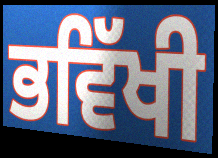
ਭਵਿੱਖੀ